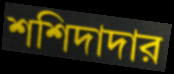
শশিদাদার